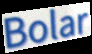
Bolar